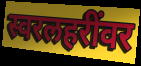
स्वरलहरींवर